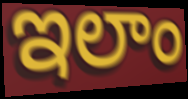
ఇలాం